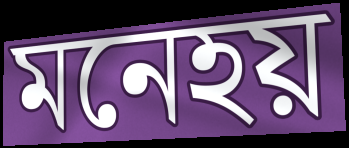
মনেহয়